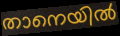
താനെയിൽ